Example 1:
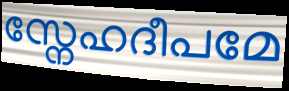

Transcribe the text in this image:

സ്നേഹദീപമേ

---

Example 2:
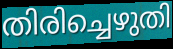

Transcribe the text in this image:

തിരിച്ചെഴുതി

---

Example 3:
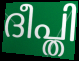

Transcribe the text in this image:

ദീപ്തി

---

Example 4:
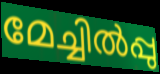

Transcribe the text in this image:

മേച്ചിൽപ്പു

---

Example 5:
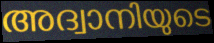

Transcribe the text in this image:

അദ്വാനിയുടെ